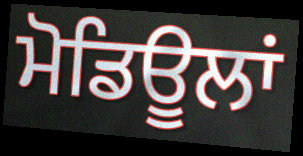
ਮੋਡਿਊਲਾਂ